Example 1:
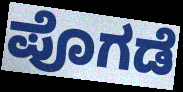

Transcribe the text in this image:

ಪೊಗಡೆ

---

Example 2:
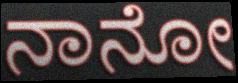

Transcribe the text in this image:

ನಾನೋ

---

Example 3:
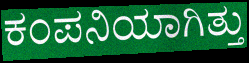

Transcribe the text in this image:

ಕಂಪನಿಯಾಗಿತ್ತು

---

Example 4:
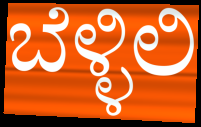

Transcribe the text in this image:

ಬೆಳ್ಳಿಲಿ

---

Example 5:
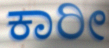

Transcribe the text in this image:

ಕಾರೀ